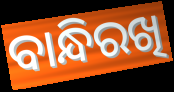
ବାନ୍ଧିରଖି